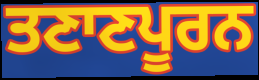
ਤਣਾਣਪੂਰਨ